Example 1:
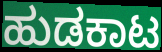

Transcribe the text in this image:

ಹುಡಕಾಟ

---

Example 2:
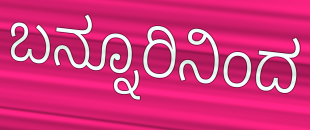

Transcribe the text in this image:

ಬನ್ನೂರಿನಿಂದ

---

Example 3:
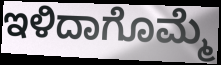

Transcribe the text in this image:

ಇಳಿದಾಗೊಮ್ಮೆ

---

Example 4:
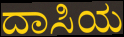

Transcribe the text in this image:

ದಾಸಿಯ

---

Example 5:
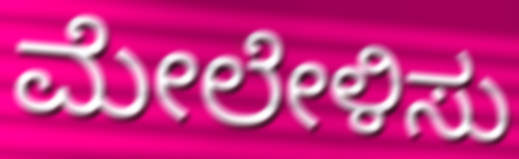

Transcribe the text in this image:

ಮೇಲೇಳಿಸು